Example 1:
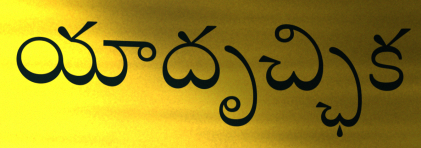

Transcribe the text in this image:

యాదృచ్ఛిక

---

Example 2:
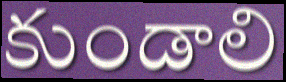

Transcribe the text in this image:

కుండాలి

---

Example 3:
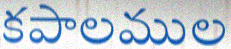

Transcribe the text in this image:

కపాలముల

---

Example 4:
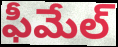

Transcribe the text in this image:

ఫీమేల్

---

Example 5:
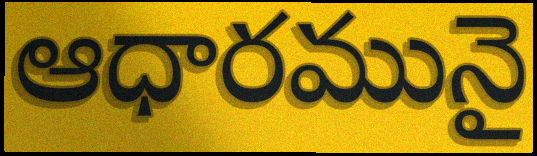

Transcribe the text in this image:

ఆధారమునై